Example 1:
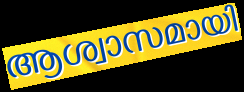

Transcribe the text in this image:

ആശ്വാസമായി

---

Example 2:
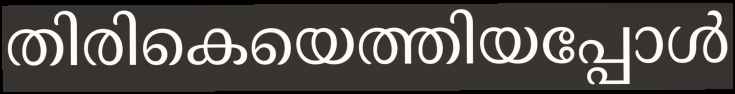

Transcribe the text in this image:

തിരികെയെത്തിയപ്പോൾ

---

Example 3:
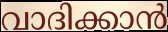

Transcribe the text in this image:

വാദിക്കാൻ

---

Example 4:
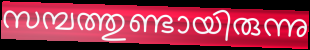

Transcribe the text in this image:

സമ്പത്തുണ്ടായിരുന്നു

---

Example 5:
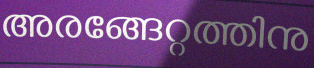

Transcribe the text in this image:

അരങ്ങേറ്റത്തിനു